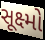
સૂક્ષ્મો